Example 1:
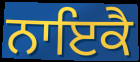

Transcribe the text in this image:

ਨਾਇਕੈ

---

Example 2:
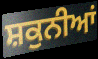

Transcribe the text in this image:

ਸ਼ਕੁਨੀਆਂ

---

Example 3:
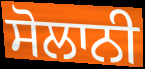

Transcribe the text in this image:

ਸੋਲਾਨੀ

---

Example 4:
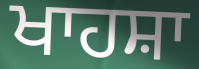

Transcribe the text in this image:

ਖਾਹਸ਼ਾ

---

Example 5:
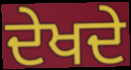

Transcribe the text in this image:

ਦੇਖਦੇ